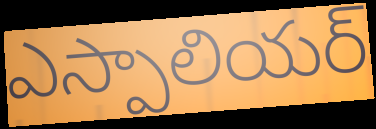
ఎస్పాలియర్